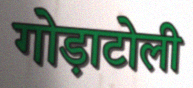
गोड़ाटोली